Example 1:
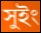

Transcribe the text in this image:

সুইং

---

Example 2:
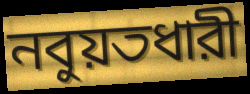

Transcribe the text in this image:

নবুয়তধারী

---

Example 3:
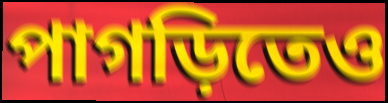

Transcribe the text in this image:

পাগড়িতেও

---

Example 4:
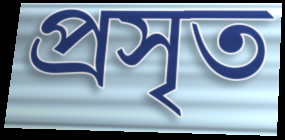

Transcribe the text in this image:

প্রসৃত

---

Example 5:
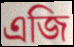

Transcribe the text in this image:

এজি